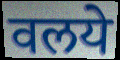
वलये